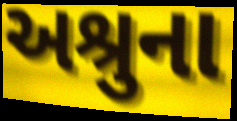
અશ્રુના